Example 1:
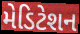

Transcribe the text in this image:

મેડિટેશન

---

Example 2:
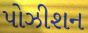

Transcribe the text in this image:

પોઝીશન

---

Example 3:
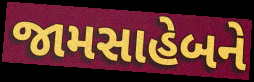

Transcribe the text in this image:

જામસાહેબને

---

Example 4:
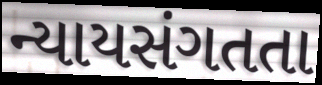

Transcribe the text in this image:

ન્યાયસંગતતા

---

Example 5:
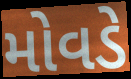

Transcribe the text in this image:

મોવડે